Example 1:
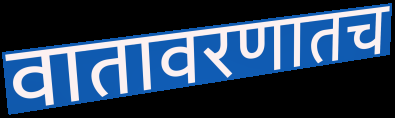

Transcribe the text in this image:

वातावरणातच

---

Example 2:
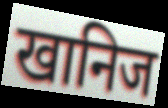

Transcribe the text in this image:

खानिज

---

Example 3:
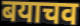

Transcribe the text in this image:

बयाचव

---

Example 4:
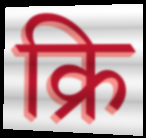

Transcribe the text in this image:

क्रि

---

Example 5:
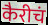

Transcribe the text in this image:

कैरीचं